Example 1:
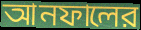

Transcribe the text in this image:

আনফালের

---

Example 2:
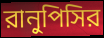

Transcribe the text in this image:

রানুপিসির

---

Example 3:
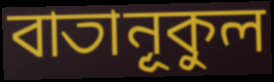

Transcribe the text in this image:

বাতানূকুল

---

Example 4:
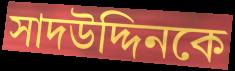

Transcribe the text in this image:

সাদউদ্দিনকে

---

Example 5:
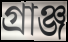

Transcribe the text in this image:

গ্রাঞ্জ